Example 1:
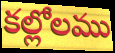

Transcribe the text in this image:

కల్లోలము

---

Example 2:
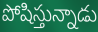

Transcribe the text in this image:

పోషిస్తున్నాడు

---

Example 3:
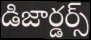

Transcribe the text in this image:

డిజార్డర్స్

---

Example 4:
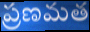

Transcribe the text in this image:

ప్రణమత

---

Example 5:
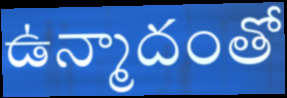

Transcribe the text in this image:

ఉన్మాదంతో